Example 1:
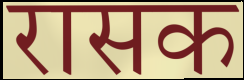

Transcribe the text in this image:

रासक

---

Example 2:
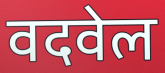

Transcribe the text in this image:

वदवेल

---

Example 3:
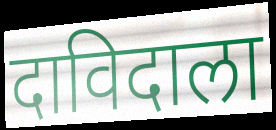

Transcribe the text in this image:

दाविदाला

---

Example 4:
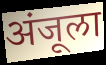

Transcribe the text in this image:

अंजूला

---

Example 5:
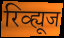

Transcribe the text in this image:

रिव्ह्यूज